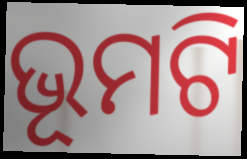
ଭୂମଟି